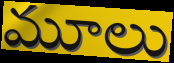
మూలు